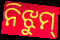
ନିଝୁମ୍